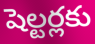
షెల్టర్లకు